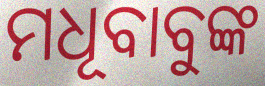
ମଧୂବାବୁଙ୍କ